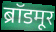
ब्रॉडमूर